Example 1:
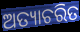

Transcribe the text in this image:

ଅତ୍ୟାଚରିତ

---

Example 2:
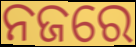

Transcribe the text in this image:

ନଜରେ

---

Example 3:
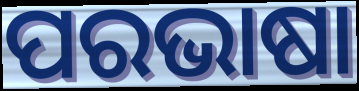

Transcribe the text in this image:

ପରଭାଷା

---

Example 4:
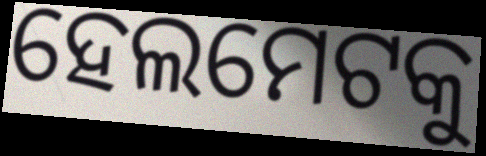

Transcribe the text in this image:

ହେଲମେଟକୁ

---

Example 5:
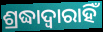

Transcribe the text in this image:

ଶ୍ରଦ୍ଧାଦ୍ୱାରାହିଁ